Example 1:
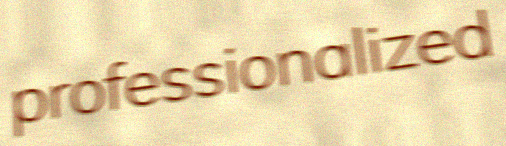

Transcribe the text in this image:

professionalized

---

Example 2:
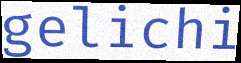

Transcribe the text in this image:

gelichi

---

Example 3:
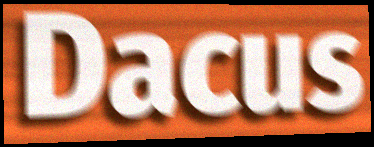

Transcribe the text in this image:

Dacus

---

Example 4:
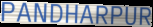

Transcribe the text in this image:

PANDHARPUR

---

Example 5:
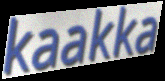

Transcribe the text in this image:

kaakka